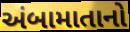
અંબામાતાનો